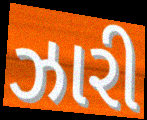
ઝારી